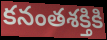
కనంతశక్తికి